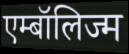
एम्बॉलिज्म